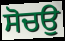
ਸੋਚਉ